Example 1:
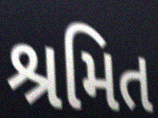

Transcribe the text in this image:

શ્રમિત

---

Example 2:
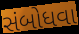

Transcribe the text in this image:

સંબોધવા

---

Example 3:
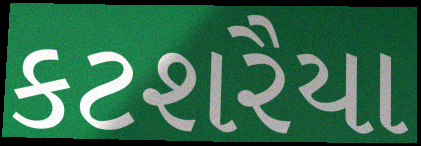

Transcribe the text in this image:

કટશરૈયા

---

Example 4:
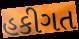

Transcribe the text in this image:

હકીગત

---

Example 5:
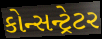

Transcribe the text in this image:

કોન્સન્ટ્રેટર